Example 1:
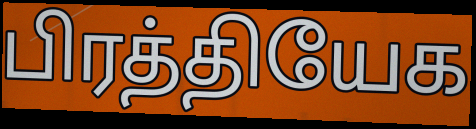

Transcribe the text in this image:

பிரத்தியேக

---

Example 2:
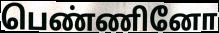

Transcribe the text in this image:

பெண்ணினோ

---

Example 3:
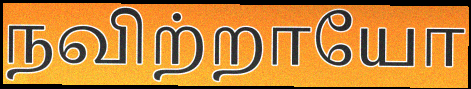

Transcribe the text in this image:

நவிற்றாயோ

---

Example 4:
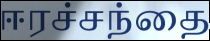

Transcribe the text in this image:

ஈரச்சந்தை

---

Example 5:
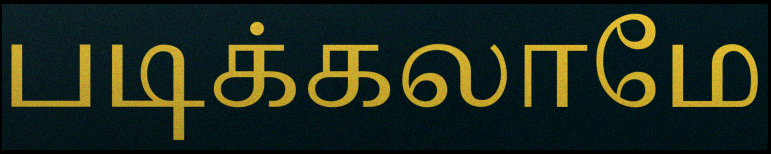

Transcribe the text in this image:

படிக்கலாமே